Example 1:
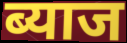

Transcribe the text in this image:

ब्याज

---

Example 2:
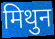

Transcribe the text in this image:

मिथुन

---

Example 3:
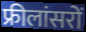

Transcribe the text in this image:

फ्रीलांसरों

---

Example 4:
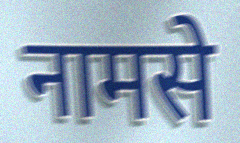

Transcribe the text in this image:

नामसे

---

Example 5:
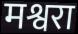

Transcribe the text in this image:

मश्वरा